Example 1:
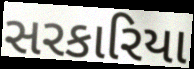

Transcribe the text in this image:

સરકારિયા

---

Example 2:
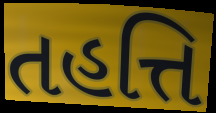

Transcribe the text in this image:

તહત્તિ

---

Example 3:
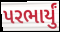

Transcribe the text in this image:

પરભાર્યું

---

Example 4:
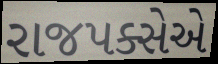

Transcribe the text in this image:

રાજપક્સેએ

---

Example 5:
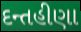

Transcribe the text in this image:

દન્તહીણા